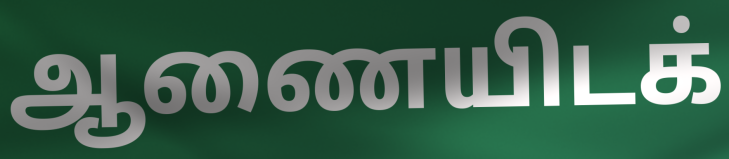
ஆணையிடக்